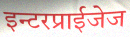
इन्टरप्राईजेज